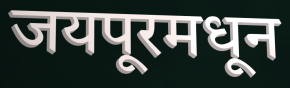
जयपूरमधून